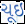
ચૂઇ